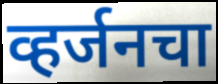
व्हर्जनचा